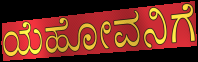
ಯೆಹೋವನಿಗೆ